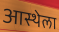
आस्थेला